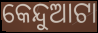
କେନ୍ଦୁଆଟା